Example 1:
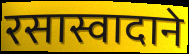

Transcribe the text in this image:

रसास्वादाने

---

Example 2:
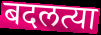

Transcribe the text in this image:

बदलत्या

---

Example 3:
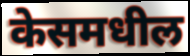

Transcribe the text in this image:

केसमधील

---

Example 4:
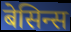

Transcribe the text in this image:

बेसिन्स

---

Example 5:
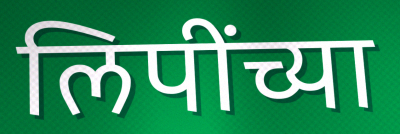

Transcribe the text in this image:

लिपींच्या